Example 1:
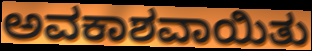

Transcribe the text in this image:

ಅವಕಾಶವಾಯಿತು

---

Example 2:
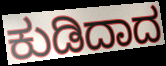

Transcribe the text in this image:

ಕುಡಿದಾದ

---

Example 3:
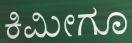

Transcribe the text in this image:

ಕಿಮೀಗೂ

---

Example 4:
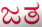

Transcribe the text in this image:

ಜತ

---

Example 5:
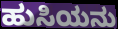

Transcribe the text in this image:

ಹುಸಿಯನು